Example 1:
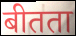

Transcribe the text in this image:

बीतता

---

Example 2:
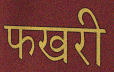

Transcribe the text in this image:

फखरी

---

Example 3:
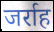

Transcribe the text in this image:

जर्राह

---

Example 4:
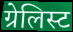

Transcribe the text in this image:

ग्रेलिस्ट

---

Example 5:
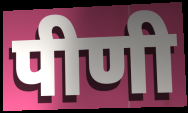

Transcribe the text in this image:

पीणी